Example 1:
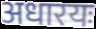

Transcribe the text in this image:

अधारयः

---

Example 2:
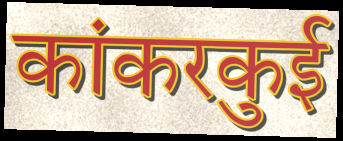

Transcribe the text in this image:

कांकरकुई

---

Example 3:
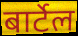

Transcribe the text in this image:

बार्टेल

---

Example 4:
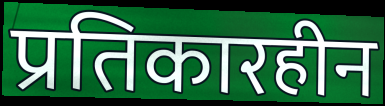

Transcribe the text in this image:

प्रतिकारहीन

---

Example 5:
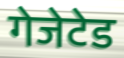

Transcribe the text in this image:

गेजेटेड